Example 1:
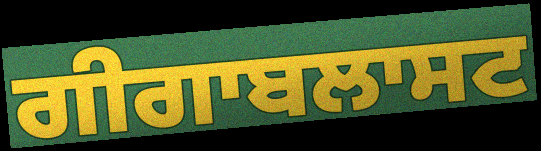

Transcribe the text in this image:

ਗੀਗਾਬਲਾਸਟ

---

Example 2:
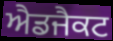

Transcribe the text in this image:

ਐਡਜੈਕਟ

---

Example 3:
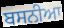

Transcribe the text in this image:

ਬਸਨੀਆ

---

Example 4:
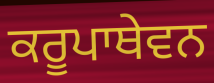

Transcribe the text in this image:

ਕਰੂਪਾਥੇਵਨ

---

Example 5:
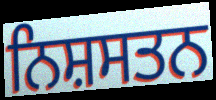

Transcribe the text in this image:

ਨਿਸ਼ਸਤਨ